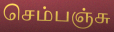
செம்பஞ்சு